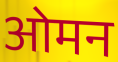
ओमन